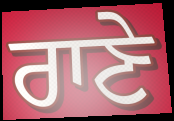
ਰਾਣੇ